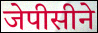
जेपीसीने